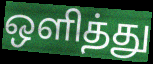
ஒளித்து